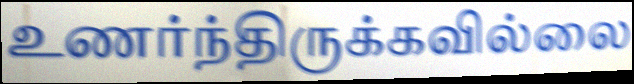
உணர்ந்திருக்கவில்லை